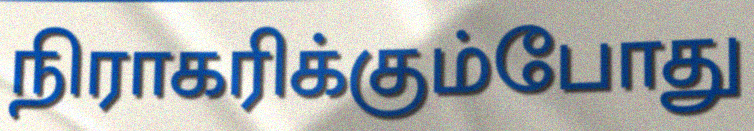
நிராகரிக்கும்போது